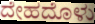
ದೇಹದೊಳು